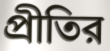
প্রীতির